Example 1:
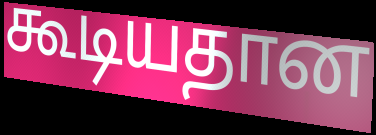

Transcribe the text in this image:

கூடியதான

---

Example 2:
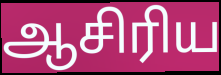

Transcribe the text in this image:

ஆசிரிய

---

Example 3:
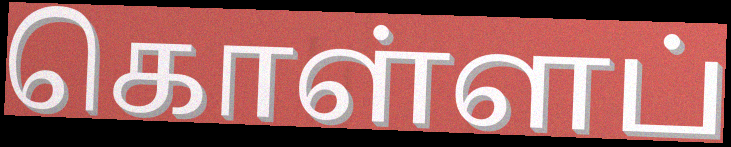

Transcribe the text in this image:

கொள்ளப்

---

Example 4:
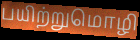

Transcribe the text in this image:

பயிற்றுமொழி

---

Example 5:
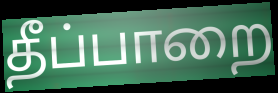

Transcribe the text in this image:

தீப்பாறை